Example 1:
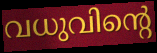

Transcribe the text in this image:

വധുവിന്റെ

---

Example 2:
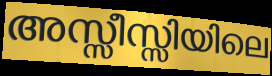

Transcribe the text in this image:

അസ്സീസ്സിയിലെ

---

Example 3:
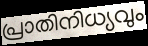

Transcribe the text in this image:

പ്രാതിനിധ്യവും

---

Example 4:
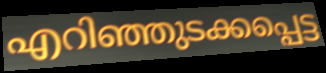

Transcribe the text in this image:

എറിഞ്ഞുടക്കപ്പെട്ട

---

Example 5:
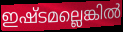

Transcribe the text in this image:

ഇഷ്ടമല്ലെങ്കിൽ